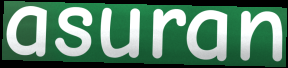
asuran